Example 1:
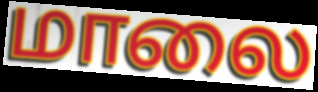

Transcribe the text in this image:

மாலை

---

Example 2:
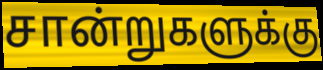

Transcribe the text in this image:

சான்றுகளுக்கு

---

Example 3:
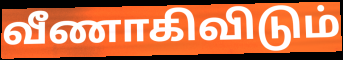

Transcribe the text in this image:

வீணாகிவிடும்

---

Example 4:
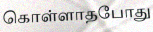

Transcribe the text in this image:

கொள்ளாதபோது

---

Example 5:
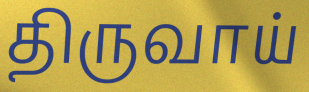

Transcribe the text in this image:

திருவாய்